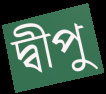
দ্বীপু